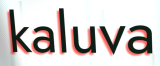
kaluva